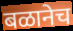
बळानेच